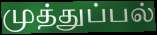
முத்துப்பல்